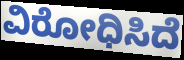
ವಿರೋಧಿಸಿದೆ